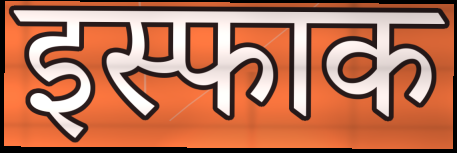
इस्फाक